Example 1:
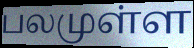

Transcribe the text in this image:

பலமுள்ள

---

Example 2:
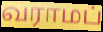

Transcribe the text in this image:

வராமப்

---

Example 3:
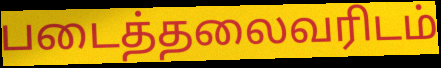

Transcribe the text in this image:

படைத்தலைவரிடம்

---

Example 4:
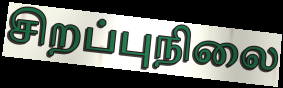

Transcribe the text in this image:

சிறப்புநிலை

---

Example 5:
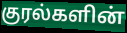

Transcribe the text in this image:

குரல்களின்